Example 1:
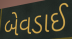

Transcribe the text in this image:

બેવડાઈ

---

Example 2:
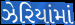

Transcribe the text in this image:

ઝેરિયાંમાં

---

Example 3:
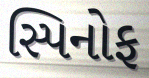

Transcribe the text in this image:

સ્પિનોફ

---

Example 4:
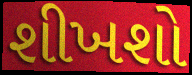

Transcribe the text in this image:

શીખશો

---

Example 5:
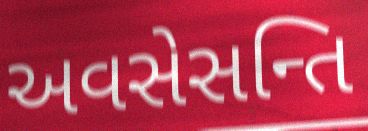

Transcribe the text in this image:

અવસેસન્તિ